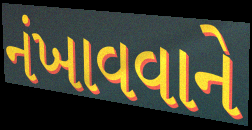
નંખાવવાને